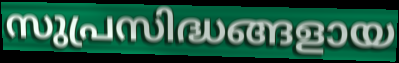
സുപ്രസിദ്ധങ്ങളായ